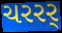
ચરરર્